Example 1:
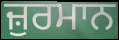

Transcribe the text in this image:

ਜ਼ੁਰਮਾਨ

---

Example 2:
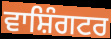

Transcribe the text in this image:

ਵਾਸ਼ਿੰਗਟਰ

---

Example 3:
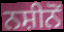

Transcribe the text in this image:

ਨਸ਼ੀਨੋਂ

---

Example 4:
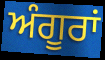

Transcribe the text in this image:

ਅੰਗੂਰਾਂ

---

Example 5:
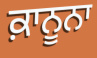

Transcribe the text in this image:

ਕ਼ਾਨੂਨਾ